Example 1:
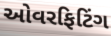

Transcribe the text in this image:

ઓવરફિટિંગ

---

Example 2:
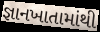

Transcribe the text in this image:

જ્ઞાનખાતામાંથી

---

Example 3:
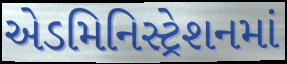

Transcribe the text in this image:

એડમિનિસ્ટ્રેશનમાં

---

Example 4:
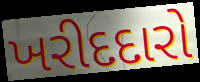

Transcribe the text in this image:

ખરીદદારો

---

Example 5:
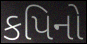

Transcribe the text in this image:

કપિનો